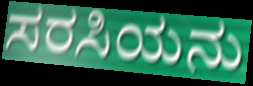
ಸರಸಿಯನು